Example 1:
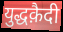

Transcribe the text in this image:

युद्धक़ैदी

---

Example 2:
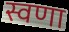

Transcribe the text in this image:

स्वणा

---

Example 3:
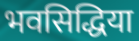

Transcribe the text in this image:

भवसिद्धिया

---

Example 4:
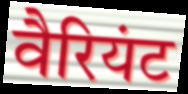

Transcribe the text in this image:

वैरियंट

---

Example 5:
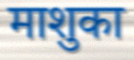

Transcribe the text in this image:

माशुका